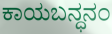
ಕಾಯಬನ್ಧನಂ